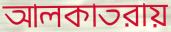
আলকাতরায়